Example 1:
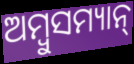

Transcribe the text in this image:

ଅମ୍ବୁସମ୍ୟାନ୍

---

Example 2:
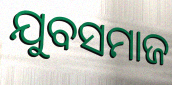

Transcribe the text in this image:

ଯୁବସମାଜ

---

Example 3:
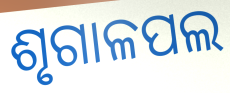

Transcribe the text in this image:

ଶୃଗାଳପଲ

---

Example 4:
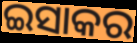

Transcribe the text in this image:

ଇସାକର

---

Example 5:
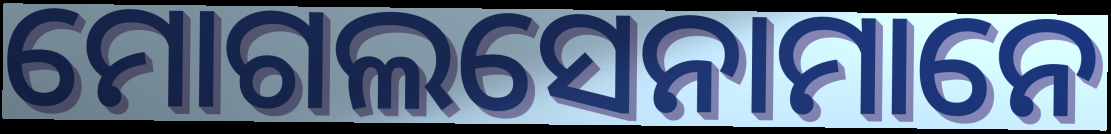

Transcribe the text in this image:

ମୋଗଲସେନାମାନେ